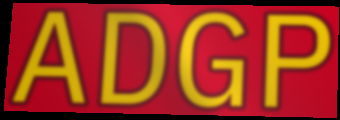
ADGP